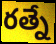
రత్నే